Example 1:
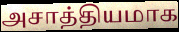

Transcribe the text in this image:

அசாத்தியமாக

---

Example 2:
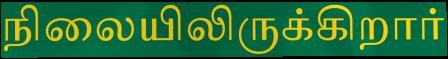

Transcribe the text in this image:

நிலையிலிருக்கிறார்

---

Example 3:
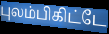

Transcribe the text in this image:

புலம்பிகிட்டே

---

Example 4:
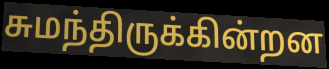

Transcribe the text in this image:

சுமந்திருக்கின்றன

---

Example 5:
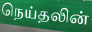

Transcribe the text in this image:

நெய்தலின்